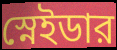
স্নেইডার